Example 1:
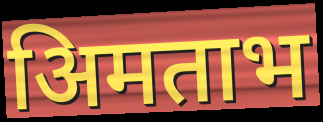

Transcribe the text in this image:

अिमताभ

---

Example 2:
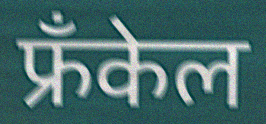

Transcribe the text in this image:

फ्रँकेल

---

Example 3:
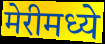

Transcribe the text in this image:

मेरीमध्ये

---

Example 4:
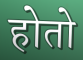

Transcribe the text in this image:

होतो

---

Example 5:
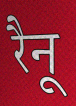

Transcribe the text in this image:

रैनू